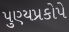
પુણ્યપ્રકોપે